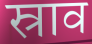
स्राव